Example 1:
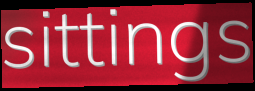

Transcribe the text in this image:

sittings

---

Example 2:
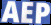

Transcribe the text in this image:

AEP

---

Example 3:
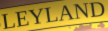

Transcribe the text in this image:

LEYLAND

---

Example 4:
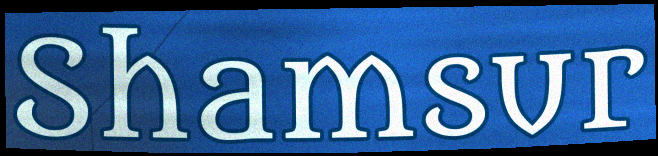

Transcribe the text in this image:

Shamsur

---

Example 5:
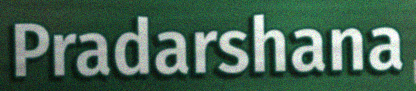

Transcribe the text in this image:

Pradarshana